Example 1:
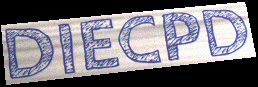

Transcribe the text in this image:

DIECPD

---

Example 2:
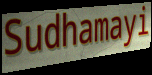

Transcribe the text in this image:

Sudhamayi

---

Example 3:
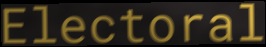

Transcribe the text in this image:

Electoral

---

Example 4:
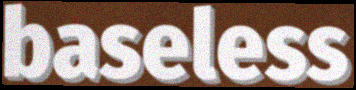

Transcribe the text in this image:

baseless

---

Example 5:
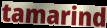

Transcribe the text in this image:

tamarind